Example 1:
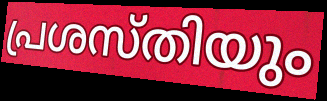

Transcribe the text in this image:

പ്രശസ്തിയും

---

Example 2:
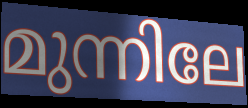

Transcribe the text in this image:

മുന്നിലേ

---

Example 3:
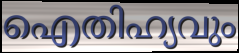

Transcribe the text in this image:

ഐതിഹ്യവും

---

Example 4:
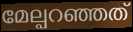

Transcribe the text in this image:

മേല്പറഞ്ഞത്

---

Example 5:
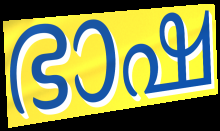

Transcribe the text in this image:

ഭാഷ